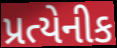
પ્રત્યેનીક